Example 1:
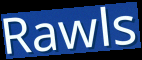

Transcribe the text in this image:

Rawls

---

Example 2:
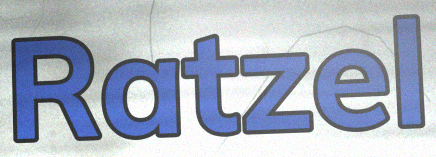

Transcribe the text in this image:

Ratzel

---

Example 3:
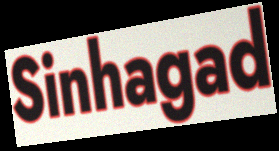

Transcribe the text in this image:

Sinhagad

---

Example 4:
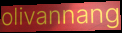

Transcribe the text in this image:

olivannang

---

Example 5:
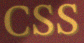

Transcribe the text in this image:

CSS